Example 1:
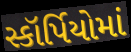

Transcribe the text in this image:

સ્કૉર્પિયોમાં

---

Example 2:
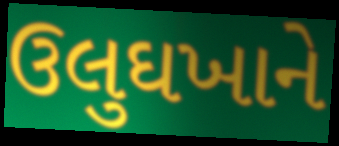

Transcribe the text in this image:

ઉલુઘખાને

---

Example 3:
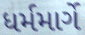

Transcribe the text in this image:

ધર્મમાર્ગે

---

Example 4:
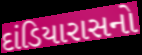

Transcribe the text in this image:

દાંડિયારાસનો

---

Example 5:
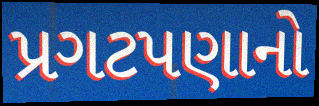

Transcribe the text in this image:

પ્રગટપણાનો